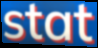
stat